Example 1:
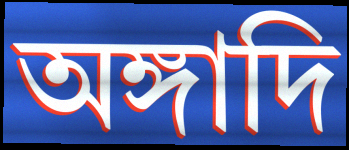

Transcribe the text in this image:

অঙ্গাদি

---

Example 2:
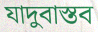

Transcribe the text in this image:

যাদুবাস্তব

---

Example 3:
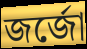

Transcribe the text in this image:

জর্জো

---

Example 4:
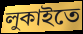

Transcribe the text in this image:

লুকাইতে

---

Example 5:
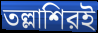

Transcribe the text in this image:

তল্লাশিরই